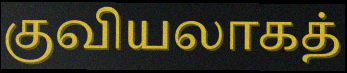
குவியலாகத்